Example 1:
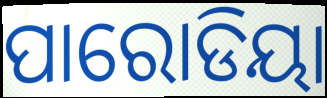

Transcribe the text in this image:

ପାରୋଡିୟା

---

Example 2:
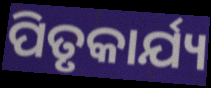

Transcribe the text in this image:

ପିତୃକାର୍ଯ୍ୟ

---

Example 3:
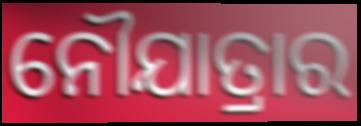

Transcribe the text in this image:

ନୌଯାତ୍ରାର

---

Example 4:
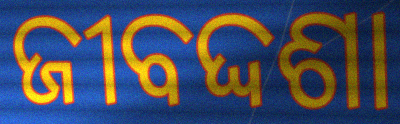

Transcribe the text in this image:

ଜୀବଦ୍ଦଶା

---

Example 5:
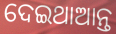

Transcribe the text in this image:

ଦେଇଥାଆନ୍ତ